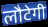
लौटेगी